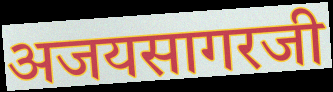
अजयसागरजी